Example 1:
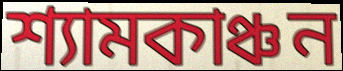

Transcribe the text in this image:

শ্যামকাঞ্চন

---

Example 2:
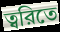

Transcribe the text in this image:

ত্বরিতে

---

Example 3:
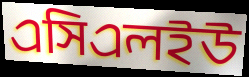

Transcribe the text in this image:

এসিএলইউ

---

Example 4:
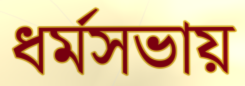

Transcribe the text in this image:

ধর্মসভায়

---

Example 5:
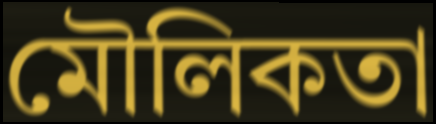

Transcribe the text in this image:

মৌলিকতা